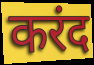
करंद